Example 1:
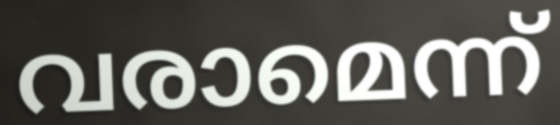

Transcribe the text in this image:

വരാമെന്ന്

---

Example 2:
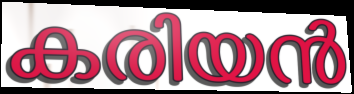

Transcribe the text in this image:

കരിയൻ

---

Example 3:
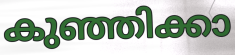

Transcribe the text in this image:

കുഞ്ഞിക്കാ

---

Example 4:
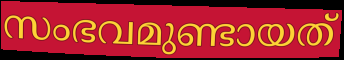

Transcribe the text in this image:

സംഭവമുണ്ടായത്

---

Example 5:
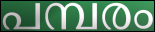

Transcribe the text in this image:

പമ്പരം